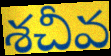
శచీవ